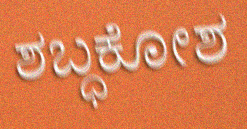
ಶಬ್ಧಕೋಶ